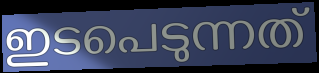
ഇടപെടുന്നത്